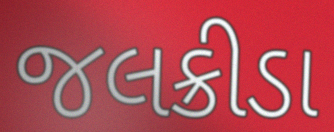
જલક્રીડા